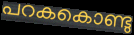
പറകകൊണ്ടു